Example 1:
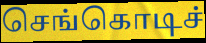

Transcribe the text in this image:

செங்கொடிச்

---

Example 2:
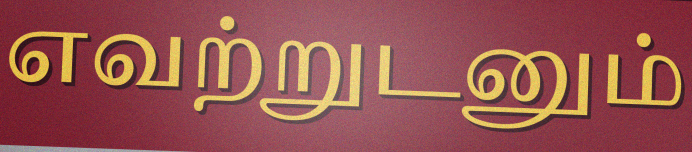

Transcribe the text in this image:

எவற்றுடனும்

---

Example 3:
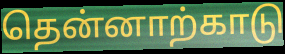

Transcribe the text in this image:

தென்னாற்காடு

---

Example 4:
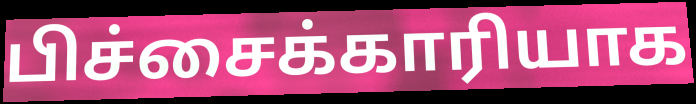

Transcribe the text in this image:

பிச்சைக்காரியாக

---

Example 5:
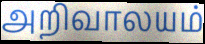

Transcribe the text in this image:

அறிவாலயம்